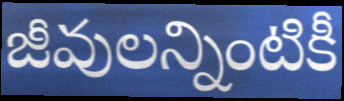
జీవులన్నింటికీ